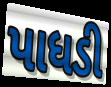
પાધડી